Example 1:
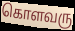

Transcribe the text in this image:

கொளவரு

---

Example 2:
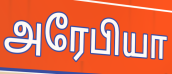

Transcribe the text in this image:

அரேபியா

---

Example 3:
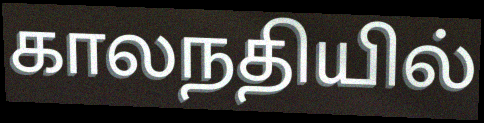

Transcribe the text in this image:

காலநதியில்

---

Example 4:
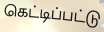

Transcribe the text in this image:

கெட்டிப்பட்டு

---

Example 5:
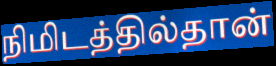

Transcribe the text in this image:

நிமிடத்தில்தான்